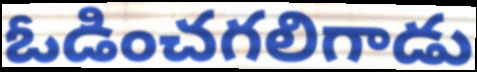
ఓడించగలిగాడు